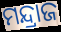
ମନ୍ଦ୍ରାଜ